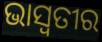
ଭାସ୍ୱତୀର